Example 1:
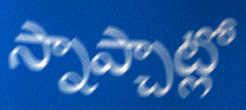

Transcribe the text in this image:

స్నాప్చాట్లో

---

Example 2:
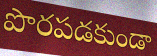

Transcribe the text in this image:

పొరపడకుండా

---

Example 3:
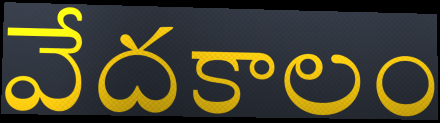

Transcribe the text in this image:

వేదకాలం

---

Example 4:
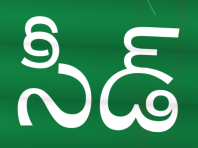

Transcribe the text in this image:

సీడ్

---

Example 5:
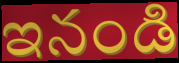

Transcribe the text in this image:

ఇనండి